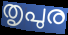
തൃപുര